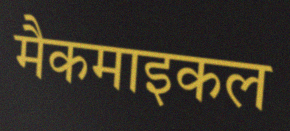
मैकमाइकल